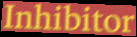
Inhibitor